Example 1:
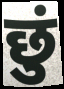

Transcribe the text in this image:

छुं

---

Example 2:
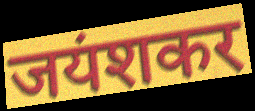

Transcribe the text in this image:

जयंशकर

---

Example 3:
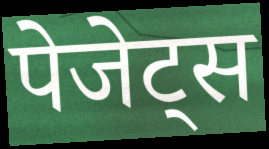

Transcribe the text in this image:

पेजेट्स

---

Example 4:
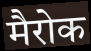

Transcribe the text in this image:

मैरोक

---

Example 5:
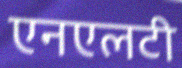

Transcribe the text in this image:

एनएलटी